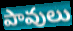
పావులు